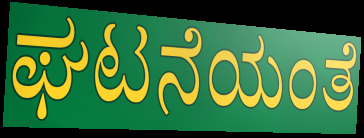
ಘಟನೆಯಂತೆ